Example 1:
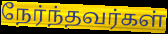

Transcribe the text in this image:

நேர்ந்தவர்கள்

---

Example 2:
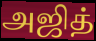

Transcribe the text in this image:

அஜித்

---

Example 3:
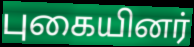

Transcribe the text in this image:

புகையினர்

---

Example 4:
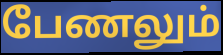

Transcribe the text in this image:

பேணலும்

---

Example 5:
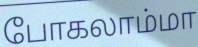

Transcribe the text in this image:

போகலாம்மா